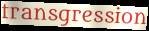
transgression